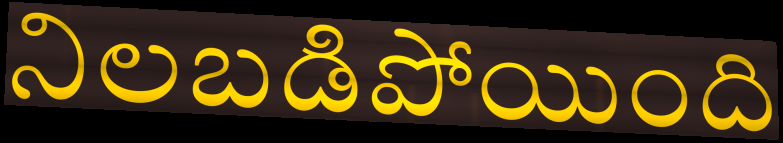
నిలబడిపోయింది